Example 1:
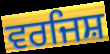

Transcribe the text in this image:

ਵਰਜਿਸ਼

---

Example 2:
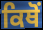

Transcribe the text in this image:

ਕਿਥੋਂ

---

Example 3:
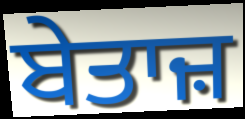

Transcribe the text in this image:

ਬੇਤਾਜ਼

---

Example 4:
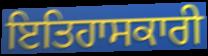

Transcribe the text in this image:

ਇਤਿਹਾਸਕਾਰੀ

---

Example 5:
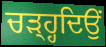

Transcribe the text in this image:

ਚੜ੍ਹ੍ਹਦਿਉਂ